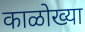
काळोख्या